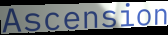
Ascension